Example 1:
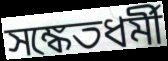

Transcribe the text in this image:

সঙ্কেতধর্মী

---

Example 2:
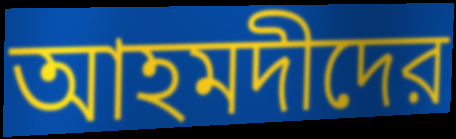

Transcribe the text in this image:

আহমদীদের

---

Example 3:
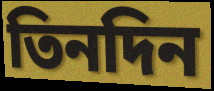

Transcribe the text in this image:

তিনদিন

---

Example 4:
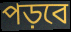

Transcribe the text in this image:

পড়বে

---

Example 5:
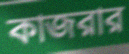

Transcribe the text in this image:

কাজরার